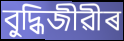
বুদ্ধিজীৱীৰ